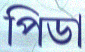
পিডা